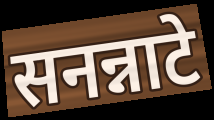
सनन्नाटे